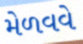
મેળવવે